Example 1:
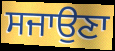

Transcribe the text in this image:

ਸਜਾਉਣਾ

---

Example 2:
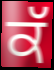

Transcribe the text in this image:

ਕੱ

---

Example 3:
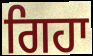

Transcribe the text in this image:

ਗਿਹਾ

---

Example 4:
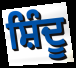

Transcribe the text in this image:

ਸ਼ਿੰਦੂ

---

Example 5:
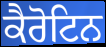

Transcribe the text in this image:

ਕੈਰੋਟਿਨ